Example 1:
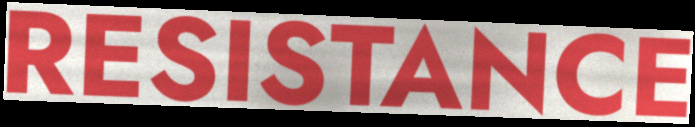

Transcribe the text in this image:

RESISTANCE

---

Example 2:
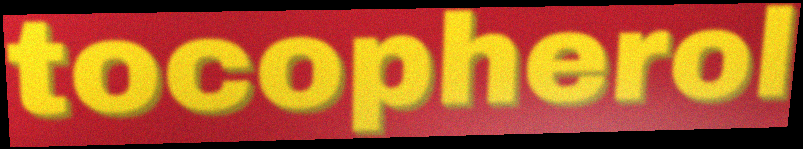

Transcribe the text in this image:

tocopherol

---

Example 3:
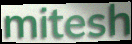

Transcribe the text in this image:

mitesh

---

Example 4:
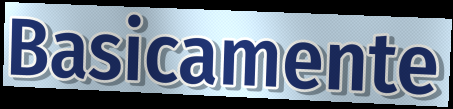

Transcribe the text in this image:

Basicamente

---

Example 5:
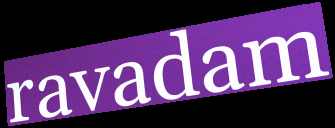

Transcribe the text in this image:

ravadam